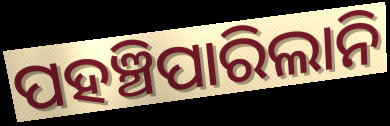
ପହଞ୍ଚିପାରିଲାନି